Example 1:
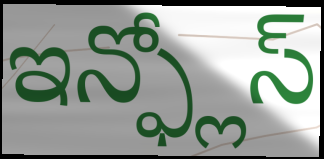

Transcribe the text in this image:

ఇన్ఫ్లోస్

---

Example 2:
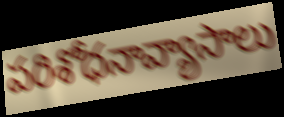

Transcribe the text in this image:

పరిశోధనావ్యాసాలు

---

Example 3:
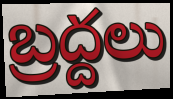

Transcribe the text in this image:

బ్రద్దలు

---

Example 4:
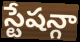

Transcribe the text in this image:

స్టేషన్గా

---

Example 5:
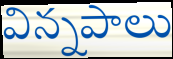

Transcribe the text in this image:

విన్నపాలు